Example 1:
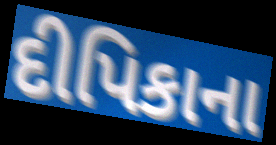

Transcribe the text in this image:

દીપિકાના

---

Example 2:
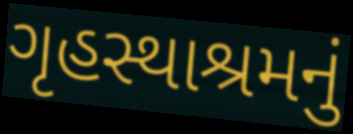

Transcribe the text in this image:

ગૃહસ્થાશ્રમનું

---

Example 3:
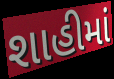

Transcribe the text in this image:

શાહીમાં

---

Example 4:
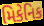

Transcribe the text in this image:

મિકેનિક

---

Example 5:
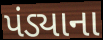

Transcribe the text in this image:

પંડ્યાના